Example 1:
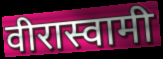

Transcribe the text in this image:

वीरास्वामी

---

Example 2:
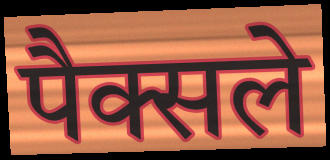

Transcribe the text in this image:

पैक्सले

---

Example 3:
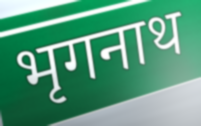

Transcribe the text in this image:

भृगनाथ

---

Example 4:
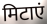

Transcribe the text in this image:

मिटाएं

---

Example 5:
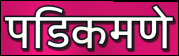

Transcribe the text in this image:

पडिकमणे